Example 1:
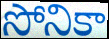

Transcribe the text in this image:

సోనికా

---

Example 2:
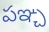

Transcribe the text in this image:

పఞ్చ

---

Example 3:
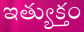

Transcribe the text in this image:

ఇత్యుక్తం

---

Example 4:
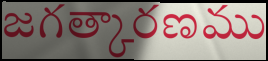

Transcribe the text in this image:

జగత్కారణము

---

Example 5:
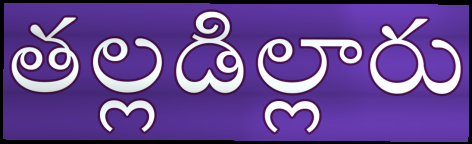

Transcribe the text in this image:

తల్లడిల్లారు